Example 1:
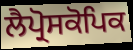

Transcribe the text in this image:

ਲੈਪ੍ਰੋਸਕੋਪਿਕ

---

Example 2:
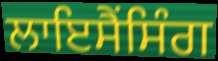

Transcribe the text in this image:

ਲਾਇਸੈਂਸਿੰਗ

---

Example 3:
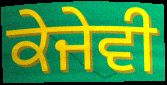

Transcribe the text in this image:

ਕੇਜੇਵੀ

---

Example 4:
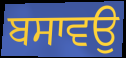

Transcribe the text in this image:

ਬਸਾਵਉ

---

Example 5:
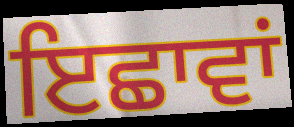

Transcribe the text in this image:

ਇਛਾਵਾਂ